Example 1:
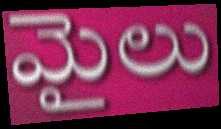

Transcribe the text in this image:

మైలు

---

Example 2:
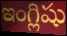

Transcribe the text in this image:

ఇంగ్లిషు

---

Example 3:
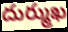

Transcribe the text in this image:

దుర్ముఖ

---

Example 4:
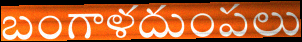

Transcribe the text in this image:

బంగాళదుంపలు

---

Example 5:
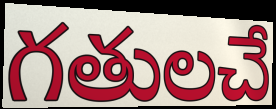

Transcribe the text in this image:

గతులచే